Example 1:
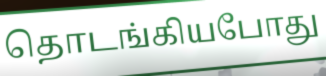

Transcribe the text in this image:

தொடங்கியபோது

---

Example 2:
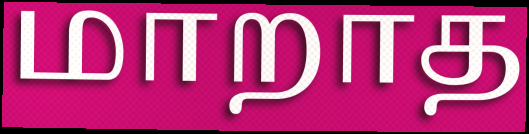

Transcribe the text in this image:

மாறாத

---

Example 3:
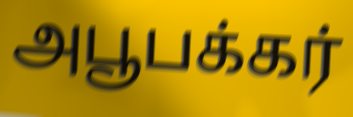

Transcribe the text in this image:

அபூபக்கர்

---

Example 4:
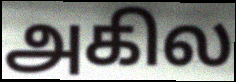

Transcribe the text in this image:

அகில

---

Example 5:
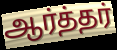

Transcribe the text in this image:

ஆர்த்தர்